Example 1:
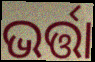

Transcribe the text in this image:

ଭର୍ତ୍ତା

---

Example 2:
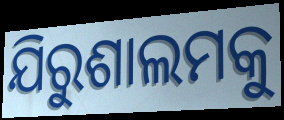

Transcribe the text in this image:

ଯିରୁଶାଲମକୁ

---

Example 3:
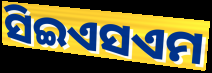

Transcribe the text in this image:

ସିଇଏସଏମ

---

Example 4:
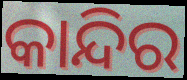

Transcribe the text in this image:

କାନ୍ଦିର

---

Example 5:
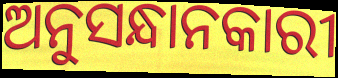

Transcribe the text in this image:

ଅନୁସନ୍ଧାନକାରୀ